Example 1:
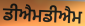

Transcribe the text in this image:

ਡੀਐਮਡੀਐਮ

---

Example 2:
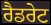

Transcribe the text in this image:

ਰੈਡਰੇਟ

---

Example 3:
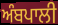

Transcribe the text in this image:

ਅੰਬਪਾਲੀ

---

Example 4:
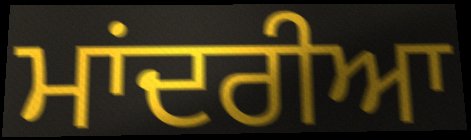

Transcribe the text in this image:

ਮਾਂਦਰੀਆ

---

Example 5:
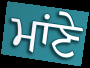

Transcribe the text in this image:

ਮਾਂਣੇ